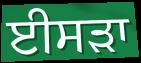
ਈਸੜਾ